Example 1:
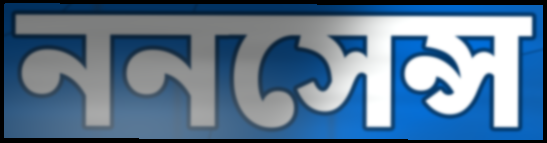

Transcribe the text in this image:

ননসেন্স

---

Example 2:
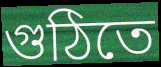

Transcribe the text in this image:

গুঠিতে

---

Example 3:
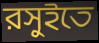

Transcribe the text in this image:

রসুইতে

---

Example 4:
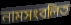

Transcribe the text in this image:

নামসংবলিত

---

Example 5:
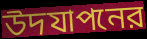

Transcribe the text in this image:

উদযাপনের